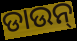
ଡାଉନ୍